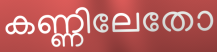
കണ്ണിലേതോ